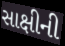
સાક્ષીની